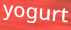
yogurt